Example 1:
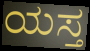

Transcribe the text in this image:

ಯಸ್ತ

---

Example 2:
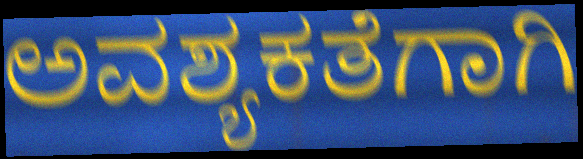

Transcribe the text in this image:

ಅವಶ್ಯಕತೆಗಾಗಿ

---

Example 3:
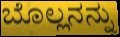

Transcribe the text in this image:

ಬೊಲ್ಲನನ್ನು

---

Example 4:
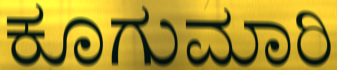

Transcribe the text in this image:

ಕೂಗುಮಾರಿ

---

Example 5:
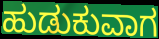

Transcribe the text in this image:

ಹುಡುಕುವಾಗ